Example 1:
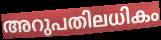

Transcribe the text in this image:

അറുപതിലധികം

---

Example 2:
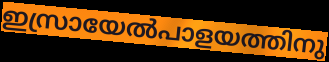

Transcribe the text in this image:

ഇസ്രായേൽപാളയത്തിനു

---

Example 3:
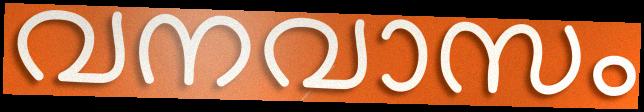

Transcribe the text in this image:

വനവാസം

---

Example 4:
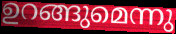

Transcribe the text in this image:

ഉറങ്ങുമെന്നു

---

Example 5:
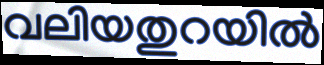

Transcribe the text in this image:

വലിയതുറയിൽ